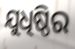
ଯୁଧିଷ୍ଠିର